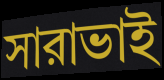
সারাভাই